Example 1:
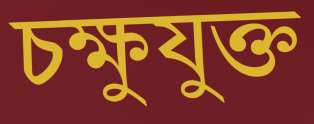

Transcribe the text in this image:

চক্ষুযুক্ত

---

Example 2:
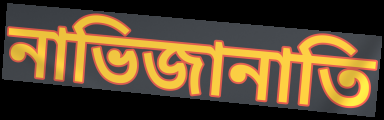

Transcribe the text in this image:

নাভিজানাতি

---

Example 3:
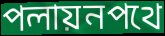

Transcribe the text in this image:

পলায়নপথে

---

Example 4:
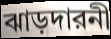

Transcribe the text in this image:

ঝাড়দারনী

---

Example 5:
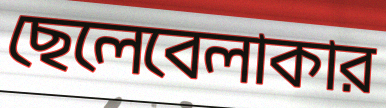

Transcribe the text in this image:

ছেলেবেলাকার